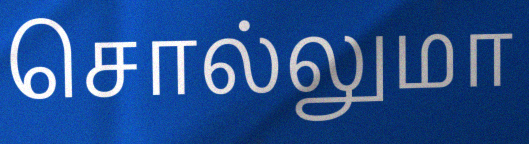
சொல்லுமா